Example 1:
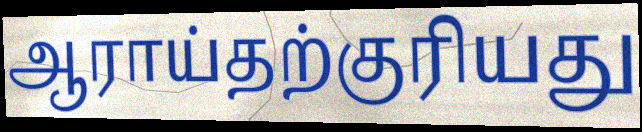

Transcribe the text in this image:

ஆராய்தற்குரியது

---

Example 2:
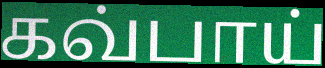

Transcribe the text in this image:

கவ்பாய்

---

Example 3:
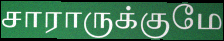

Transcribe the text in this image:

சாராருக்குமே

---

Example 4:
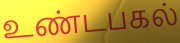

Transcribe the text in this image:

உண்டபகல்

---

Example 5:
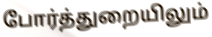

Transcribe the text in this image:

போர்த்துறையிலும்